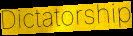
Dictatorship